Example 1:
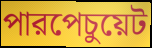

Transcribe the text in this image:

পারপেচুয়েট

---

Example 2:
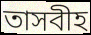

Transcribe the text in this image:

তাসবীহ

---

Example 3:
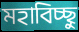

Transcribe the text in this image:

মহাবিচ্ছু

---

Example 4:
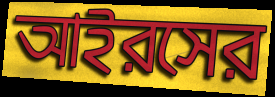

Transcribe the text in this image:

আইরসের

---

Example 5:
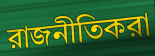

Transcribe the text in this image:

রাজনীতিকরা